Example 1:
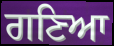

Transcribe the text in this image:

ਗਣਿਆ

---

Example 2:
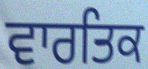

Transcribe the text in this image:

ਵਾਰਤਿਕ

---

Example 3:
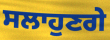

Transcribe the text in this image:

ਸਲਾਹੁਣਗੇ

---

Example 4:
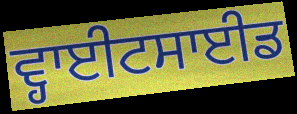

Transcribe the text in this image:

ਵ੍ਹਾਈਟਸਾਈਡ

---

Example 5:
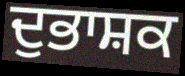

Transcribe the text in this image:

ਦੁਭਾਸ਼ਕ